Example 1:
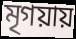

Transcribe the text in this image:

মৃগয়ায়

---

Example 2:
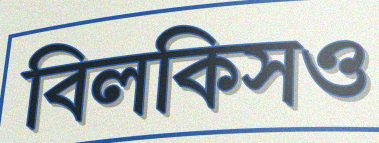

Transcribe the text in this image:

বিলকিসও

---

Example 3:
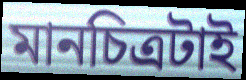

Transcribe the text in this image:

মানচিত্রটাই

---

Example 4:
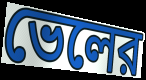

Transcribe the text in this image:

ভেলের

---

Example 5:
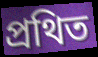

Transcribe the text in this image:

প্রথিত